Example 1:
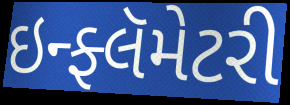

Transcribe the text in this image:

ઇન્ફ્લૅમેટરી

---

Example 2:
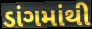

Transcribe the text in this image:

ડાંગમાંથી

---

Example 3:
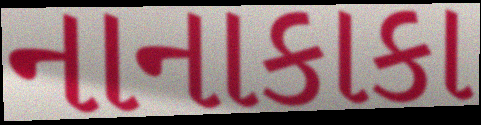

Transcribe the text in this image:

નાનાકાકા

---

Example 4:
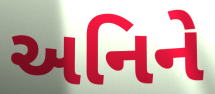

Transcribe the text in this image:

અનિને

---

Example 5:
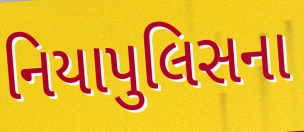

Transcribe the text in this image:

નિયાપુલિસના